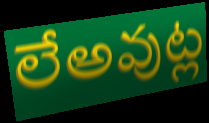
లేఅవుట్ల